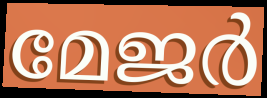
മേജർ